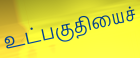
உட்பகுதியைச்